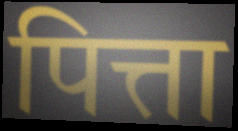
पित्ता